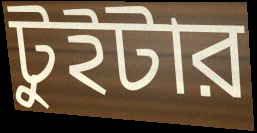
টুইটার